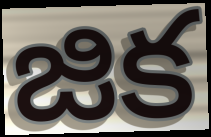
జిక